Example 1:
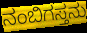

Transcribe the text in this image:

ನಂಬಿಗಸ್ತನು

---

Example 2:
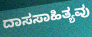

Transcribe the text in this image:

ದಾಸಸಾಹಿತ್ಯವು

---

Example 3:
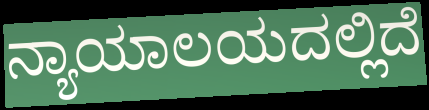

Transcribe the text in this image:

ನ್ಯಾಯಾಲಯದಲ್ಲಿದೆ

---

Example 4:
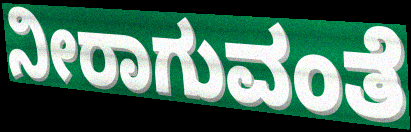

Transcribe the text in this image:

ನೀರಾಗುವಂತೆ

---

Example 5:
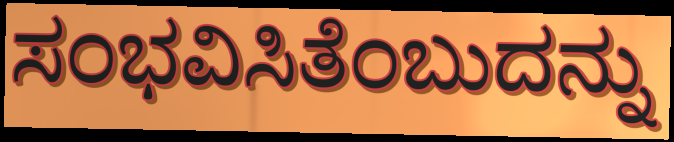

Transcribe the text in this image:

ಸಂಭವಿಸಿತೆಂಬುದನ್ನು